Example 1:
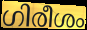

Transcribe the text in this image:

ഗിരീശം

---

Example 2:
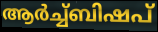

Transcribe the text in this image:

ആർച്ച്ബിഷപ്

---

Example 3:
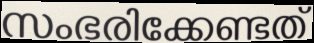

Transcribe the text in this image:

സംഭരിക്കേണ്ടത്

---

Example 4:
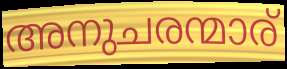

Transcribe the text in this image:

അനുചരന്മാര്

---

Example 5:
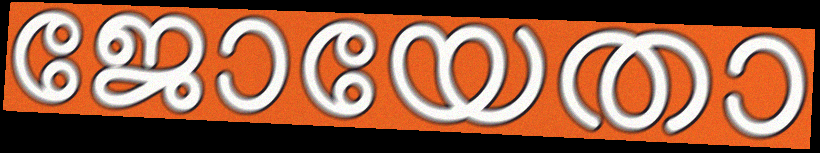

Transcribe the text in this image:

ജോയേതാ